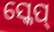
ସ୍କେପ୍